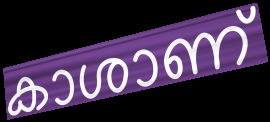
കാശാണ്